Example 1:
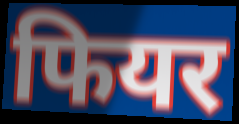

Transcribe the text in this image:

फियर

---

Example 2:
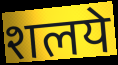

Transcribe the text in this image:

शलये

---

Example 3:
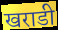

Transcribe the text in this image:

खराडी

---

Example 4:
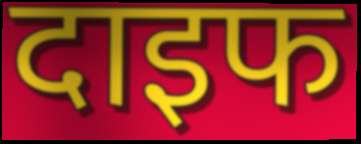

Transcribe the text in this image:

दाइफ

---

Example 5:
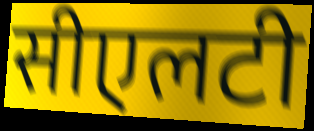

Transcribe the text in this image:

सीएलटी